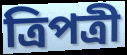
ত্রিপত্রী